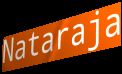
Nataraja